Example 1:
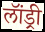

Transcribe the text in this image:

लॉंड्री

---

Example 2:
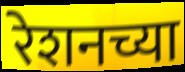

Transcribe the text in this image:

रेशनच्या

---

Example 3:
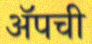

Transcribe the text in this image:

ॲपची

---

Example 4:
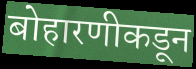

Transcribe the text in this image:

बोहारणीकडून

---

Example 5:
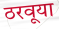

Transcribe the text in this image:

ठरवूया